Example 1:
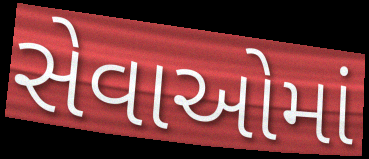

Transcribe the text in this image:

સેવાઓમાં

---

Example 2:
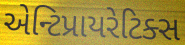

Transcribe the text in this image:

એન્ટિપ્રાયરેટિક્સ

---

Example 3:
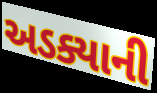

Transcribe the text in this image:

અડક્યાની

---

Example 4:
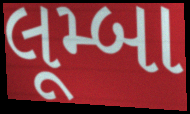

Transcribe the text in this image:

લૂમ્બા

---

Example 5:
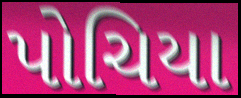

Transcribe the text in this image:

પોચિયા